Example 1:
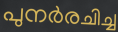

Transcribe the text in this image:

പുനർരചിച്ച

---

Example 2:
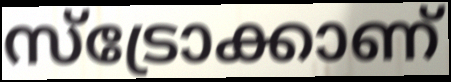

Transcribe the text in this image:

സ്ട്രോക്കാണ്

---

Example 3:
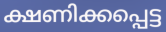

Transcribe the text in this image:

ക്ഷണിക്കപ്പെട്ട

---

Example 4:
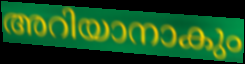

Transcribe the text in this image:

അറിയാനാകും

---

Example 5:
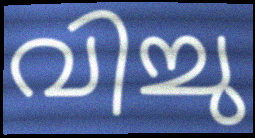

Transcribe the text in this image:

വിച്ചു